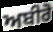
ਅਬੀਰੋ